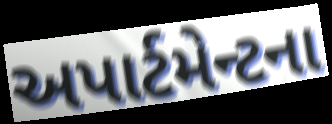
અપાર્ટમેન્ટના